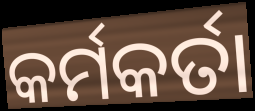
କର୍ମକର୍ତା